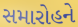
સમારોહને